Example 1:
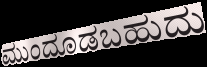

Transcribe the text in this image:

ಮುಂದೂಡಬಹುದು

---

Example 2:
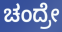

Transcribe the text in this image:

ಚಂದ್ರೇ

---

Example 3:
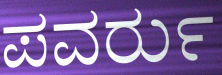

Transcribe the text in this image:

ಪವರ್ರು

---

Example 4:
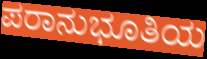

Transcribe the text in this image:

ಪರಾನುಭೂತಿಯ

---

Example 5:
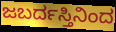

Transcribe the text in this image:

ಜಬರ್ದಸ್ತಿನಿಂದ